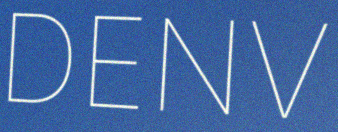
DENV